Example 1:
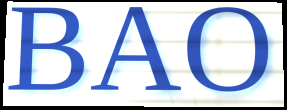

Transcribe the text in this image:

BAO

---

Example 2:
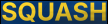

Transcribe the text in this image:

SQUASH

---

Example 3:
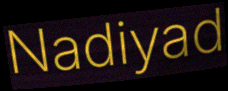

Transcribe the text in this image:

Nadiyad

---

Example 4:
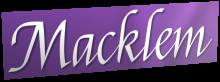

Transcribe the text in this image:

Macklem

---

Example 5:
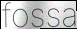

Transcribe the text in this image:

fossa